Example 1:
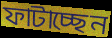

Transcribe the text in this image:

ফাটাচ্ছেন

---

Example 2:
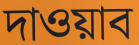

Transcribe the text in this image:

দাওয়াব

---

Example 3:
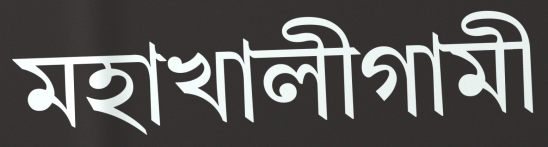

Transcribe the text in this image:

মহাখালীগামী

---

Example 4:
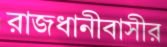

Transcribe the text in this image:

রাজধানীবাসীর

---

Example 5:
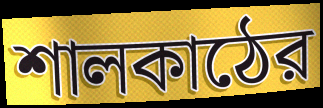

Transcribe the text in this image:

শালকাঠের